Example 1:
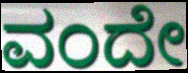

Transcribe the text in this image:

ವಂದೇ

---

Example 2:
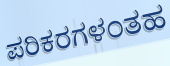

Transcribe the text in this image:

ಪರಿಕರಗಳಂತಹ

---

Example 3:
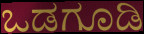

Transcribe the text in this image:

ಒಡಗೂಡಿ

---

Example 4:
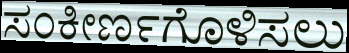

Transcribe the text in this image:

ಸಂಕೀರ್ಣಗೊಳಿಸಲು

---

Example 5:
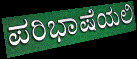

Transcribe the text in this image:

ಪರಿಭಾಷೆಯಲಿ